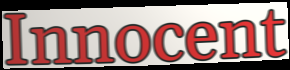
Innocent